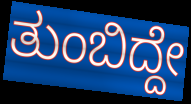
ತುಂಬಿದ್ದೇ